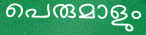
പെരുമാളും